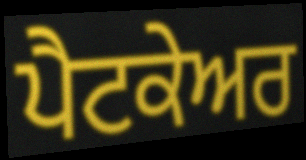
ਪੈਟਕੇਅਰ